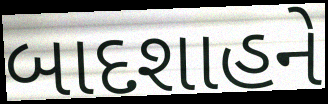
બાદશાહને